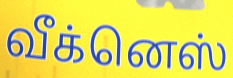
வீக்னெஸ்